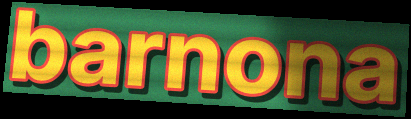
barnona